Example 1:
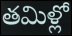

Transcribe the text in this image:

తమిళ్లో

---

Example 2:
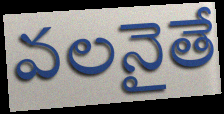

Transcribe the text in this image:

వలనైతే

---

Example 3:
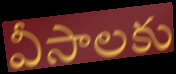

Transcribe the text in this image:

వీసాలకు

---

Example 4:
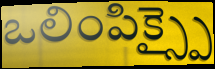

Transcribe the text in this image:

ఒలింపిక్స్పై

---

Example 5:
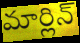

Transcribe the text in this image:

మార్లిన్